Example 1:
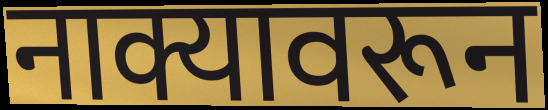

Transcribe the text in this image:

नाक्यावरून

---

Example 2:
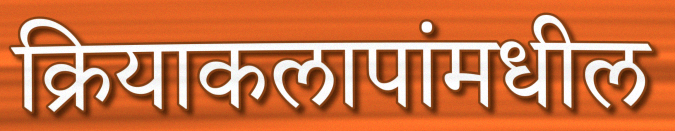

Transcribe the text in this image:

क्रियाकलापांमधील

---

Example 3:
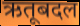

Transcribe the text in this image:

ऋतूबदल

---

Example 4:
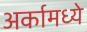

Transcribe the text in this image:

अर्कामध्ये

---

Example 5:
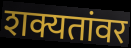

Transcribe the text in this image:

शक्यतांवर